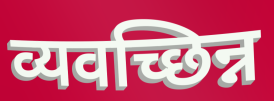
व्यवच्छिन्न